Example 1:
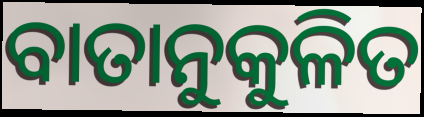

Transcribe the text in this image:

ବାତାନୁକୁଳିତ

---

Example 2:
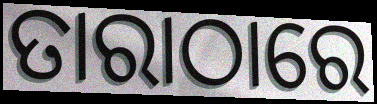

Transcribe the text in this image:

ତାରାଠାରେ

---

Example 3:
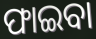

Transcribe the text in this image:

ଫାଇବା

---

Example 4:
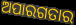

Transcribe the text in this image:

ଅପାରଗତାର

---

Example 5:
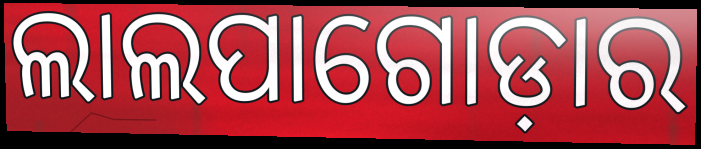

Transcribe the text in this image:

ଲାଲପାଗୋଡ଼ାର